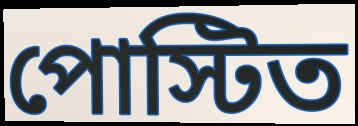
পোস্টিত